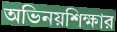
অভিনয়শিক্ষার